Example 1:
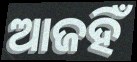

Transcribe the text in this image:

ଆଜହିଁ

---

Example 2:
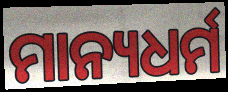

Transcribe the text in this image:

ମାନ୍ୟଧର୍ମ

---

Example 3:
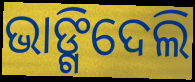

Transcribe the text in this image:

ଭାଙ୍ଗିଦେଲି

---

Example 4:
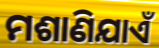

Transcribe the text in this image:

ମଶାଣିଯାଏଁ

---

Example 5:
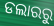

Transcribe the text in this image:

ଡଲାରରୁ